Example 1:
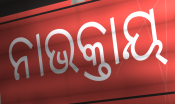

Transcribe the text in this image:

ନାଭକ୍ତାୟ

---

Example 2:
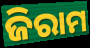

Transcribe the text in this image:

ଜିରାମ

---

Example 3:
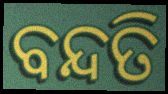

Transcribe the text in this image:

ବନ୍ଦତି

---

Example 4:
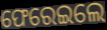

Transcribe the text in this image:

ଫେରେଇଲେ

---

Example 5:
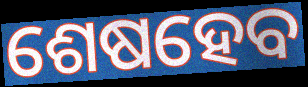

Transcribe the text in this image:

ଶେଷହେବ